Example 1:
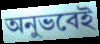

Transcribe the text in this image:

অনুভবেই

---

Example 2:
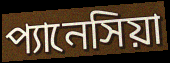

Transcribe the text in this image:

প্যানেসিয়া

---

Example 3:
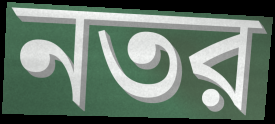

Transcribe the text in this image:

নতর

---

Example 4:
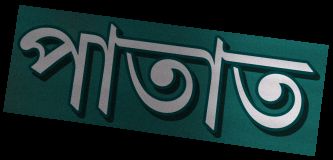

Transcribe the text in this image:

পাতাত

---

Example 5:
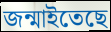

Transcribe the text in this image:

জন্মাইতেছে